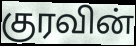
குரவின்